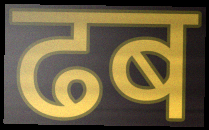
ढब